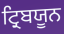
ਟ੍ਰਿਬਯੂਨ